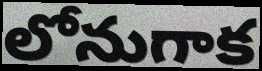
లోనుగాక